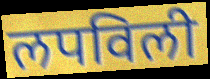
लपविली